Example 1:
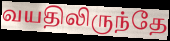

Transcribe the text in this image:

வயதிலிருந்தே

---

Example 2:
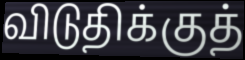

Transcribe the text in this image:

விடுதிக்குத்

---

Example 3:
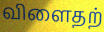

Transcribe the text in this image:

விளைதற்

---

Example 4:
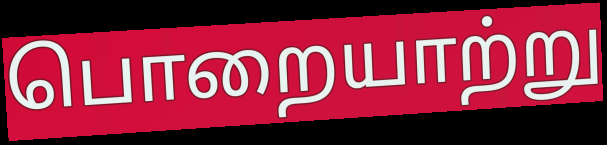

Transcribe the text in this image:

பொறையாற்று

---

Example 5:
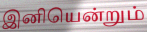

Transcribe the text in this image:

இனியென்றும்